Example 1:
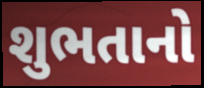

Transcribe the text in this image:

શુભતાનો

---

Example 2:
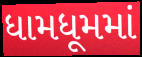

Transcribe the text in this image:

ધામધૂમમાં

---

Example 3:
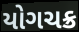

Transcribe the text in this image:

યોગચક્ર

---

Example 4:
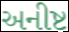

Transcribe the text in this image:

અનીષ્ટ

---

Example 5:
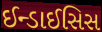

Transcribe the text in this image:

ઈન્ડાઈસિસ